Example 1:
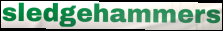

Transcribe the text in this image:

sledgehammers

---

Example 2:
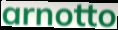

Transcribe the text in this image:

arnotto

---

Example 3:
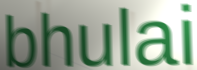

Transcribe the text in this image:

bhulai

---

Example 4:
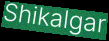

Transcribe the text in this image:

Shikalgar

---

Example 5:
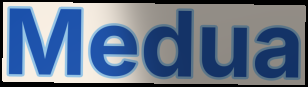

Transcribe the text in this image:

Medua